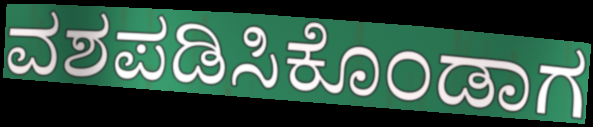
ವಶಪಡಿಸಿಕೊಂಡಾಗ